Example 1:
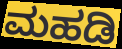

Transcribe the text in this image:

ಮಹಡಿ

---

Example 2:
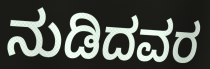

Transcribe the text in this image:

ನುಡಿದವರ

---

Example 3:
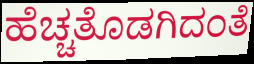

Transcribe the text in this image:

ಹೆಚ್ಚತೊಡಗಿದಂತೆ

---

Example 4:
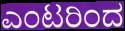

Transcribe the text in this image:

ಎಂಟರಿಂದ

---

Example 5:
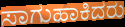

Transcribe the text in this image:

ಸಾಗುಹಾಕಿದರು